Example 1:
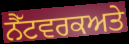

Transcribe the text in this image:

ਨੈੱਟਵਰਕਅਤੇ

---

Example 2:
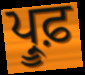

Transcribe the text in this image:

ਪ੍ਰੂਫ਼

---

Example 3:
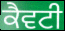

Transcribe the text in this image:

ਕੈਵਟੀ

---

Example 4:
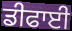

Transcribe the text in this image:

ਡੀਫਾਈ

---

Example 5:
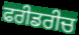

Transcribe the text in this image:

ਫਰੀਡਰੀਚ